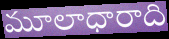
మూలాధారాది